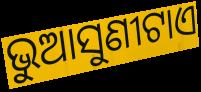
ଭୁଆସୁଣୀଟାଏ